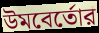
উমবের্তোর